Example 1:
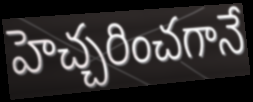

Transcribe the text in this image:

హెచ్చరించగానే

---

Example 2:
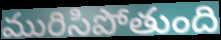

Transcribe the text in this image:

మురిసిపోతుంది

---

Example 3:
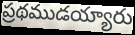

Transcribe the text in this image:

ప్రథముడయ్యారు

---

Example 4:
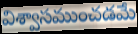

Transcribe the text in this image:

విశ్వాసముంచడమే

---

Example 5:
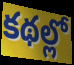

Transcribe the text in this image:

కథల్లో